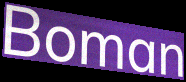
Boman